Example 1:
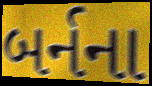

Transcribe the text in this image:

બર્નના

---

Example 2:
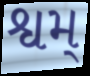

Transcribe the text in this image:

શ્વમ્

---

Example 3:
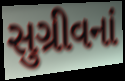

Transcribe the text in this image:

સુગ્રીવનાં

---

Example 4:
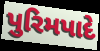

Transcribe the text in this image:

પુરિમપાદે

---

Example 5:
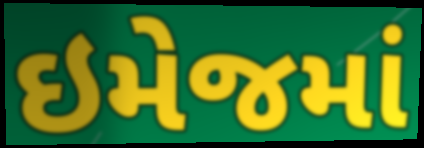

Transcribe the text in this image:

ઇમેજમાં